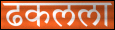
ढकलला